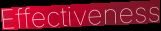
Effectiveness